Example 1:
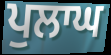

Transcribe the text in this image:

ਪੁਲਾਘ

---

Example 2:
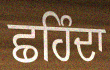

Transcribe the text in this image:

ਛਹਿੰਦਾ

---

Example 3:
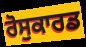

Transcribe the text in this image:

ਰੋਸੁਕਾਰਡ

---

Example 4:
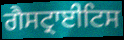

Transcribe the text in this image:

ਗੈਸਟ੍ਰਾਈਟਿਸ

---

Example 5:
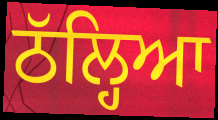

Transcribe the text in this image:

ਠੱਲ੍ਹਿਆ